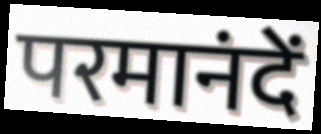
परमानंदें